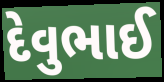
દેવુભાઈ